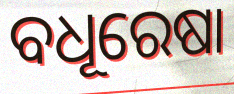
ବଧୂରେଷା